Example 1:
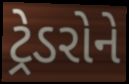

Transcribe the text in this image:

ટ્રેડરોને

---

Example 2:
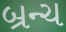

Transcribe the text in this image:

બ્રન્ચ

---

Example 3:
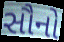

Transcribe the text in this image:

સૌનો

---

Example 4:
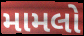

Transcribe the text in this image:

મામલો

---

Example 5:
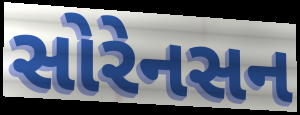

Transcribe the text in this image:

સોરેનસન